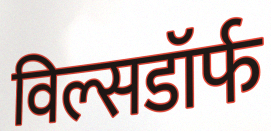
विल्सडॉर्फ